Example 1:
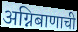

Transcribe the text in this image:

अग्निबाणाची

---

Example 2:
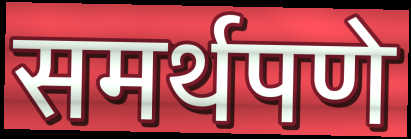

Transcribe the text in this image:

समर्थपणे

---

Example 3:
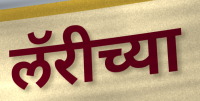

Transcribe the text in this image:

लॅरीच्या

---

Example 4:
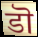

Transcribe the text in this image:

डॊ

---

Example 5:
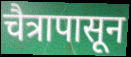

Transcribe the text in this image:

चैत्रापासून